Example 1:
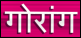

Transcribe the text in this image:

गोरांग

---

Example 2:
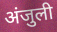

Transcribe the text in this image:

अंजुली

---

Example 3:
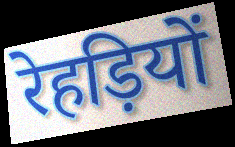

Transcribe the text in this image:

रेहड़ियों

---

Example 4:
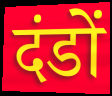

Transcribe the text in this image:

दंडों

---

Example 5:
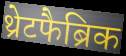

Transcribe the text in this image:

थ्रेटफैब्रिक